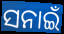
ସନାଇଁ